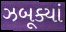
ઝબૂક્યાં